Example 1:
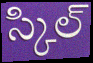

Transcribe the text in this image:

స్కిల్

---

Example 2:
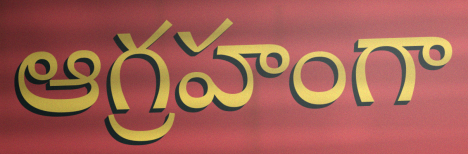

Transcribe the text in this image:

ఆగ్రహంగా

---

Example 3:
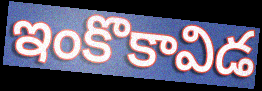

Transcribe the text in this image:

ఇంకొకావిడ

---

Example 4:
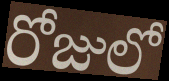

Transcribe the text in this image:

రోజులో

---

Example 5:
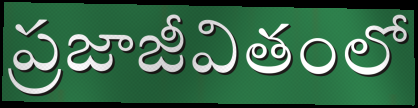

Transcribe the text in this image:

ప్రజాజీవితంలో